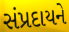
સંપ્રદાયને